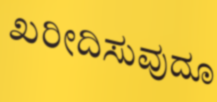
ಖರೀದಿಸುವುದೂ